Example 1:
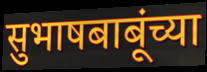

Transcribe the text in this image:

सुभाषबाबूंच्या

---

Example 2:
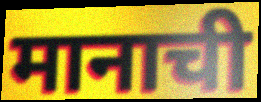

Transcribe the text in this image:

मानाची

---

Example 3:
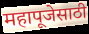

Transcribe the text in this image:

महापूजेसाठी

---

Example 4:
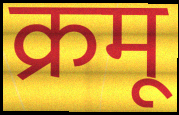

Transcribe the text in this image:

क्रमू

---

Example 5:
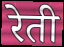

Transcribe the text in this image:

रेती